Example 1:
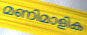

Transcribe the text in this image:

മണിമാളിക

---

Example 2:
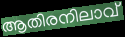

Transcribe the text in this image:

ആതിരനിലാവ്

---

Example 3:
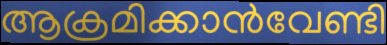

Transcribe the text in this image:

ആക്രമിക്കാൻവേണ്ടി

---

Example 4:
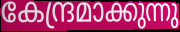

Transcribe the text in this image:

കേന്ദ്രമാക്കുന്നു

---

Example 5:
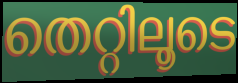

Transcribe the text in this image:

തെറ്റിലൂടെ